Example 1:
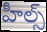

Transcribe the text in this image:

హీల్స్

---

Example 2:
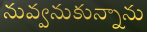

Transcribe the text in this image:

నువ్వనుకున్నాను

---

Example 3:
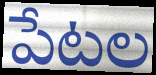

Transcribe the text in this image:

పేటల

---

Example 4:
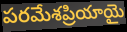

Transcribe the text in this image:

పరమేశప్రియాయై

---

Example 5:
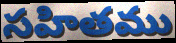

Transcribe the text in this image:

సహితము